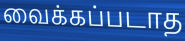
வைக்கப்படாத